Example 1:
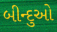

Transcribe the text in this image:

બીન્દુઓ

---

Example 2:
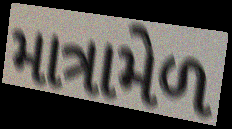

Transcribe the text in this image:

માત્રામેળ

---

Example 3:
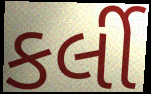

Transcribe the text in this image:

કર્લી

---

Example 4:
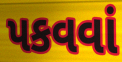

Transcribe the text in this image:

પકવવાં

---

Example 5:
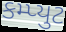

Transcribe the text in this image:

કમ્પ્યુટ